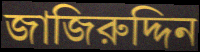
জাজিরুদ্দিন